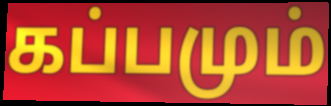
கப்பமும்